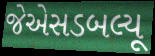
જેએસડબલ્યૂ